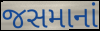
જસમાનાં